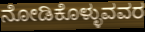
ನೋಡಿಕೊಳ್ಳುವವರ